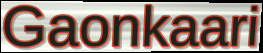
Gaonkaari